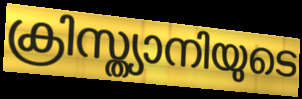
ക്രിസ്ത്യാനിയുടെ